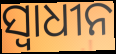
ସ୍ଵାଧୀନ